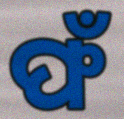
ଫଁ